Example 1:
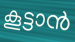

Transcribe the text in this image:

കൂട്ടാൻ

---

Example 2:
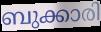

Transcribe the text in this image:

ബുക്കാരി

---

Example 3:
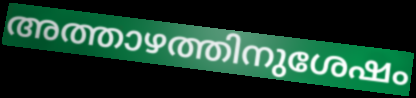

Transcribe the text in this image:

അത്താഴത്തിനുശേഷം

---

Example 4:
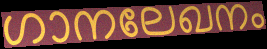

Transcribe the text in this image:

ഗാനലേഖനം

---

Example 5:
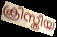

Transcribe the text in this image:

ക്രിസ്തീയ